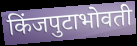
किंजपुटाभोवती